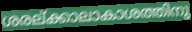
ശരല്ക്കാലാകാശത്തിനു